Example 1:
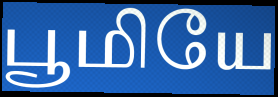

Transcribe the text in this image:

பூமியே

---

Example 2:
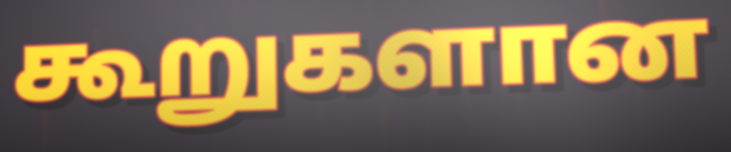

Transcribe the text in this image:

கூறுகளான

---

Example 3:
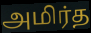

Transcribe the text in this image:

அமிர்த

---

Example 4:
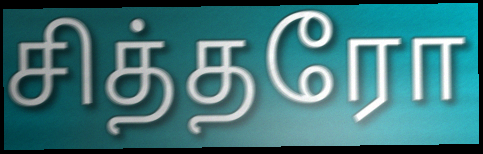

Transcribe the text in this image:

சித்தரோ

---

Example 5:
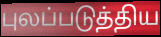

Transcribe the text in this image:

புலப்படுத்திய